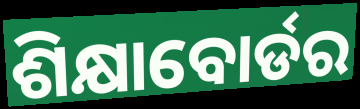
ଶିକ୍ଷାବୋର୍ଡର